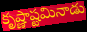
కృష్ణాష్టమినాడు